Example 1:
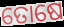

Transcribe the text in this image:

ତୋଷେ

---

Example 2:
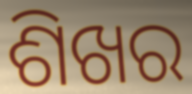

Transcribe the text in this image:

ଶିଖର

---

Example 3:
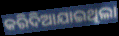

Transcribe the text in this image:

କରିଦିଆଯାଇଥିଲା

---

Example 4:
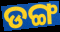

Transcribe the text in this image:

ଡଙ୍ଗ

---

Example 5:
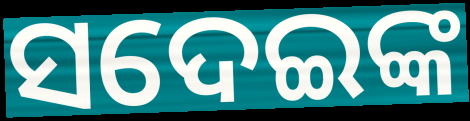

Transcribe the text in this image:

ସଦେଇଙ୍କ